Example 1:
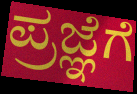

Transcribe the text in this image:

ಪ್ರಜ್ಞೆಗೆ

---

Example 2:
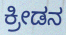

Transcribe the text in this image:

ಕ್ರೀಡನ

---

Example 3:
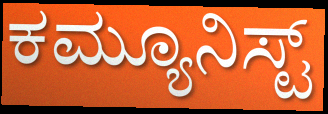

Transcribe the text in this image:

ಕಮ್ಯೂನಿಸ್ಟ್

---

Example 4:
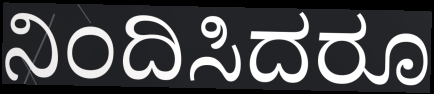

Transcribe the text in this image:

ನಿಂದಿಸಿದರೂ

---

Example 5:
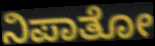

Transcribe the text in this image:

ನಿಪಾತೋ